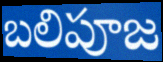
బలిపూజ